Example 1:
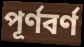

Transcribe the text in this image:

পূর্ণবর্ণ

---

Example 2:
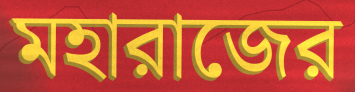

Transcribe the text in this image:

মহারাজের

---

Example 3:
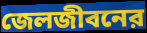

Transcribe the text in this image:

জেলজীবনের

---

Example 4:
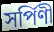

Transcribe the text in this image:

সর্পিণী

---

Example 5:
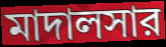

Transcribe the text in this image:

মাদালসার